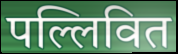
पल्लिवित